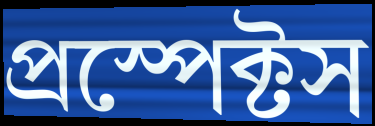
প্রস্পেক্টস